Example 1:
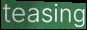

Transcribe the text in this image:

teasing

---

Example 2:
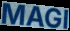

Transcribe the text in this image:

MAGI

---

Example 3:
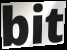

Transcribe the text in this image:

bit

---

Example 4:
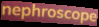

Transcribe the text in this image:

nephroscope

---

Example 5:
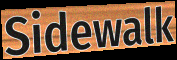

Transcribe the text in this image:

Sidewalk